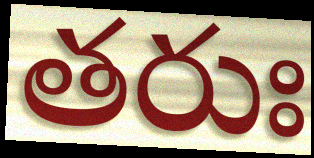
తరుః